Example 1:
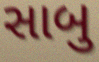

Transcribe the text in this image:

સાબુ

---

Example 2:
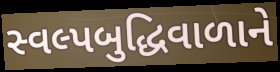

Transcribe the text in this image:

સ્વલ્પબુદ્ધિવાળાને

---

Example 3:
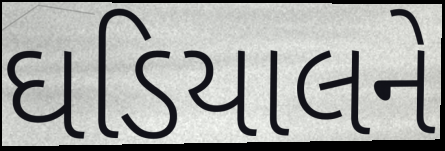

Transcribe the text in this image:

ઘડિયાલને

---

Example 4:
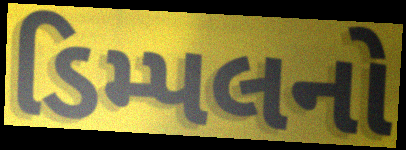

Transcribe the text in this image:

ડિમ્પલનો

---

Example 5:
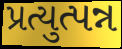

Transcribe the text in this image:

પ્રત્યુત્પન્ન